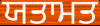
ਯਤਾਮਤ